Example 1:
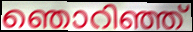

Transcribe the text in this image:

ഞൊറിഞ്ഞ്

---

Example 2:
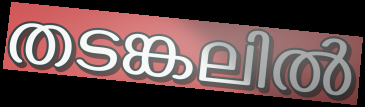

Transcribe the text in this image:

തടങ്കലിൽ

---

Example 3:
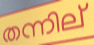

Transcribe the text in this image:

തന്നില്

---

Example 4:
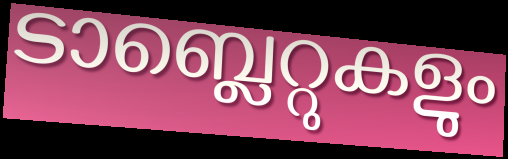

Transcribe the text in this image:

ടാബ്ലെറ്റുകളും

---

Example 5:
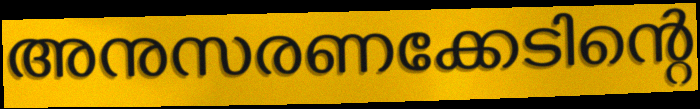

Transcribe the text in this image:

അനുസരണക്കേടിന്റെ